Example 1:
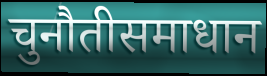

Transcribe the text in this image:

चुनौतीसमाधान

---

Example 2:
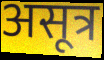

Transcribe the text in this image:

असूत्र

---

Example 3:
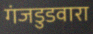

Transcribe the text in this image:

गंजडुडवारा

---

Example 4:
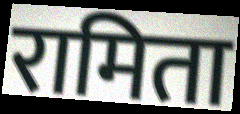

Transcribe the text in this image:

रामिता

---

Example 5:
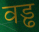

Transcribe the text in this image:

वड्ढ